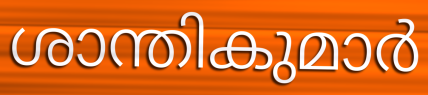
ശാന്തികുമാർ